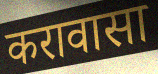
करावासा